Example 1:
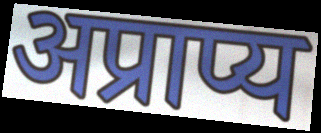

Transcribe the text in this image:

अप्राप्य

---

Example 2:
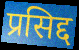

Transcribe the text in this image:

प्रसिद्द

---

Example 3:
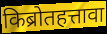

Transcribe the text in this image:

किब्रोतहत्तावा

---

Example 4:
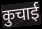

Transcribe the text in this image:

कुचाई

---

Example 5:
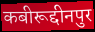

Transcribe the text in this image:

कबीरूद्दीनपुर